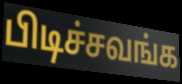
பிடிச்சவங்க